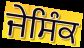
ਜੇਸਿੰਕ